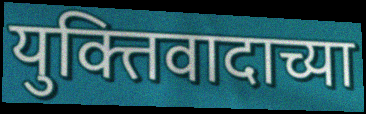
युक्तिवादाच्या